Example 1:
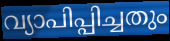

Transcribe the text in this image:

വ്യാപിപ്പിച്ചതും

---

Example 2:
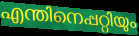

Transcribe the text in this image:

എന്തിനെപ്പറ്റിയും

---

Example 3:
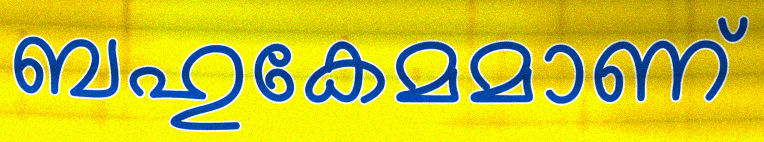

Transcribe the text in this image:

ബഹുകേമമാണ്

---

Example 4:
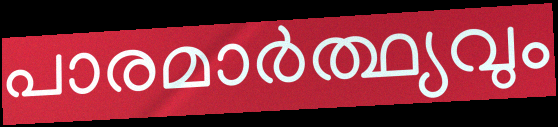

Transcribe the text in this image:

പാരമാർത്ഥ്യവും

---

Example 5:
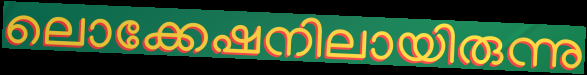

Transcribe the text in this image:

ലൊക്കേഷനിലായിരുന്നു